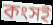
কংসই